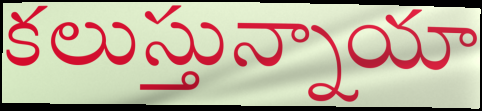
కలుస్తున్నాయా